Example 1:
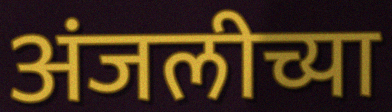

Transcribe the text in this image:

अंजलीच्या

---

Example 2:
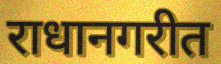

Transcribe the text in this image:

राधानगरीत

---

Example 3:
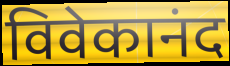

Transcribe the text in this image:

विवेकानंद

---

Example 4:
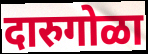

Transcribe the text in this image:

दारुगोळा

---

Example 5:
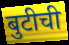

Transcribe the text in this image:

बुटीची